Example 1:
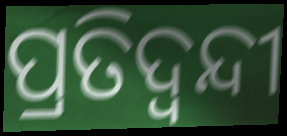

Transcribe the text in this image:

ପ୍ରତିଦ୍ଵନ୍ଦୀ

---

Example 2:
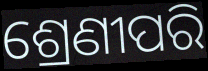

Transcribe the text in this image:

ଶ୍ରେଣୀପରି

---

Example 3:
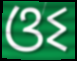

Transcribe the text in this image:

ଓଽ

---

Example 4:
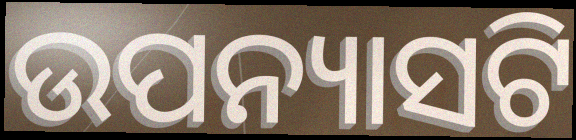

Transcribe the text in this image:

ଉପନ୍ୟାସଟି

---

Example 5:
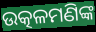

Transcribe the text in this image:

ଉତ୍କଳମଣିଙ୍କ